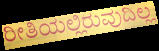
ರೀತಿಯಲ್ಲಿರುವುದಿಲ್ಲ